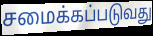
சமைக்கப்படுவது